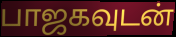
பாஜகவுடன்